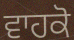
ਵਾਹਕੋ